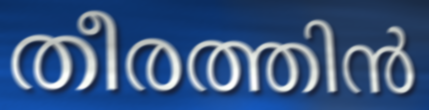
തീരത്തിൻ